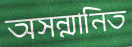
অসন্মানিত